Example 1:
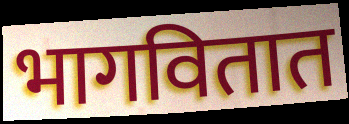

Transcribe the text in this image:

भागवितात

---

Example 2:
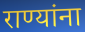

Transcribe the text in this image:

राण्यांना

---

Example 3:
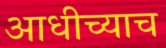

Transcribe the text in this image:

आधीच्याच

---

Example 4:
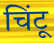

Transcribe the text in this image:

चिंटू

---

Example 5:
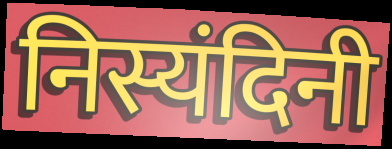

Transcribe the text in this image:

निस्यंदिनी